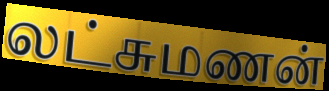
லட்சுமணன்